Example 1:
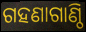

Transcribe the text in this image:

ଗହଣାଗାଣ୍ଠି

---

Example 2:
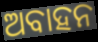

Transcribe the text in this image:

ଅବାହନ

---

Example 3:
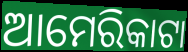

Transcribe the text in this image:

ଆମେରିକାଟା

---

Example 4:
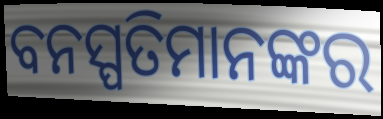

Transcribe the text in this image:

ବନସ୍ପତିମାନଙ୍କର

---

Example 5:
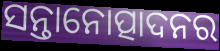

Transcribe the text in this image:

ସନ୍ତାନୋତ୍ପାଦନର